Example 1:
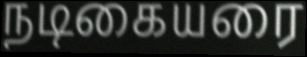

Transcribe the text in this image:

நடிகையரை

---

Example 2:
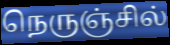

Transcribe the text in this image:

நெருஞ்சில்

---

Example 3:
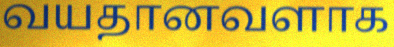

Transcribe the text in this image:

வயதானவளாக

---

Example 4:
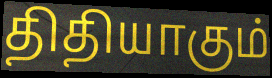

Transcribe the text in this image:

திதியாகும்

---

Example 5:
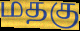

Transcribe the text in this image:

மதகு